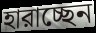
হারাচ্ছেন